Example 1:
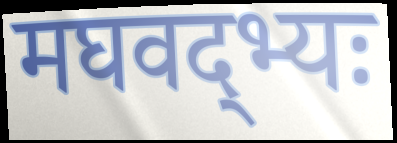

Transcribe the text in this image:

मघवद्भ्यः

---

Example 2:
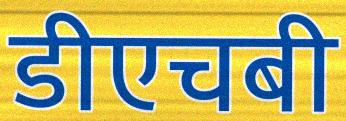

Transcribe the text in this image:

डीएचबी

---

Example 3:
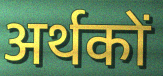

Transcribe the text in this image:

अर्थकों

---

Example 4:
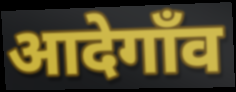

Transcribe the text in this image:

आदेगाँव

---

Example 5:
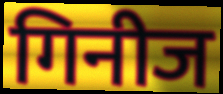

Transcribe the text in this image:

गिनीज